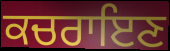
ਕਚਰਾਇਣ